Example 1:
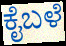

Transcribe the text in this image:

ಕೈಬಳೆ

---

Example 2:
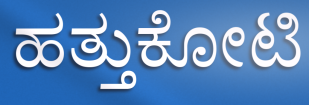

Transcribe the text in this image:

ಹತ್ತುಕೋಟಿ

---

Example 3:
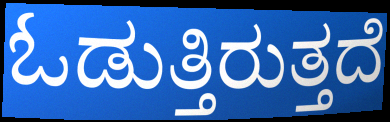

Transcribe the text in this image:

ಓಡುತ್ತಿರುತ್ತದೆ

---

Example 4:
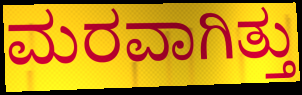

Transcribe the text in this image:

ಮರವಾಗಿತ್ತು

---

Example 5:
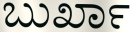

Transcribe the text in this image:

ಬುರ್ಖಾ